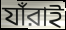
যাঁরাই